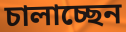
চালাচ্ছেন